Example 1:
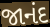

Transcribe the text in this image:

જાનંદ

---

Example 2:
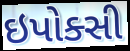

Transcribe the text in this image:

ઇપોક્સી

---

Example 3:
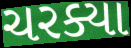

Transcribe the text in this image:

ચરક્યા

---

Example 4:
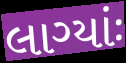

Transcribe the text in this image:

લાગ્યાંઃ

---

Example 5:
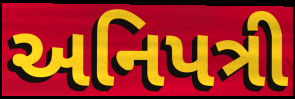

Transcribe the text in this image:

અનિપત્રી